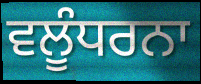
ਵਲੂੰਧਰਨਾ